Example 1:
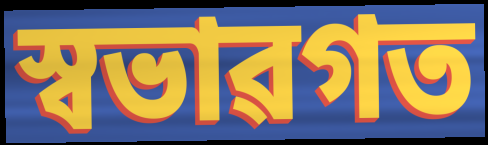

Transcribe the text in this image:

স্বভাৱগত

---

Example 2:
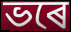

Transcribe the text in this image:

ভৰে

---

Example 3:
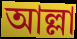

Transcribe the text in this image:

আল্লা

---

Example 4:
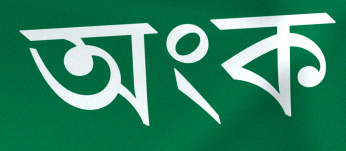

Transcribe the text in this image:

অংক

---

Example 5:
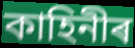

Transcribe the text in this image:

কাহিনীৰ